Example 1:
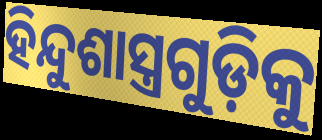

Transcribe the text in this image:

ହିନ୍ଦୁଶାସ୍ତ୍ରଗୁଡ଼ିକୁ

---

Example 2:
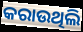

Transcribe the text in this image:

କରାଉଥିଲି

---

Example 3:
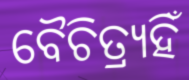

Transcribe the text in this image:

ବୈଚିତ୍ର୍ୟହିଁ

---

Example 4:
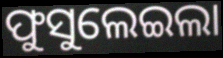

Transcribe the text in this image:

ଫୁସୁଲେଇଲା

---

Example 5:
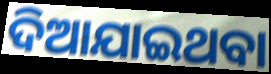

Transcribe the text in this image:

ଦିଆଯାଇଥବା